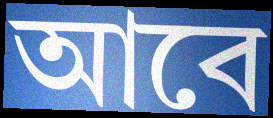
আবে